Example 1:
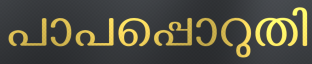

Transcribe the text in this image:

പാപപ്പൊറുതി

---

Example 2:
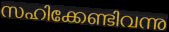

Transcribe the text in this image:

സഹിക്കേണ്ടിവന്നു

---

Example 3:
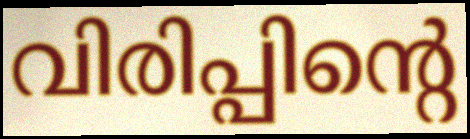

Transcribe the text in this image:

വിരിപ്പിന്റെ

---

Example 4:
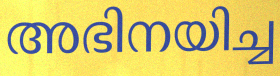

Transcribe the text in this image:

അഭിനയിച്ച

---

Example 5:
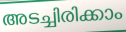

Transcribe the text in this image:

അടച്ചിരിക്കാം